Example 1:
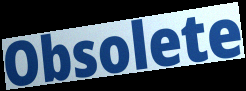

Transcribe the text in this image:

Obsolete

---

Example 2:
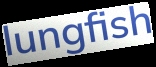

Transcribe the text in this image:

lungfish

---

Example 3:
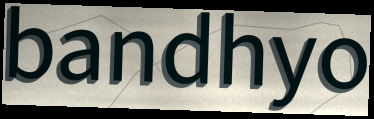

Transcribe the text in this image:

bandhyo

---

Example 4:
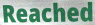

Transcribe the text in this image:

Reached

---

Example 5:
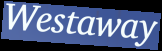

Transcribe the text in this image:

Westaway